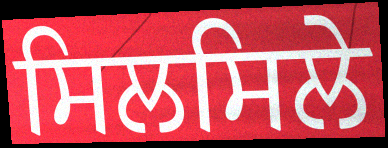
ਸਿਲਸਿਲੇ